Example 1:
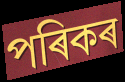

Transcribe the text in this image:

পৰিকৰ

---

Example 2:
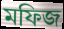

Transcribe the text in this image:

মফিজ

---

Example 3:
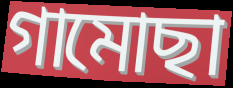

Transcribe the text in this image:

গামোছা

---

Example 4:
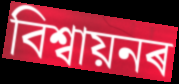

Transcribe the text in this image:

বিশ্বায়নৰ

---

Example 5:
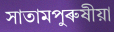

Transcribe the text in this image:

সাতামপুৰুষীয়া